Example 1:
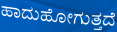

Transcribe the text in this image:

ಹಾದುಹೋಗುತ್ತದೆ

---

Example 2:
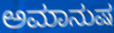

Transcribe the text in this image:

ಅಮಾನುಷ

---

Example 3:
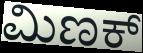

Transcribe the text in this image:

ಮಿಣಕ್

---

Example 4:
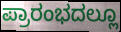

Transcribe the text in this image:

ಪ್ರಾರಂಭದಲ್ಲೂ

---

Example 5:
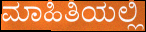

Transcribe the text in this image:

ಮಾಹಿತಿಯಲ್ಲಿ